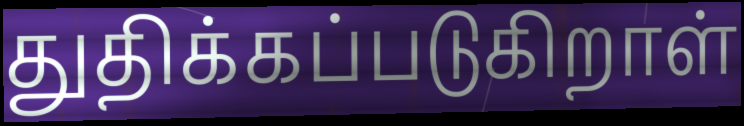
துதிக்கப்படுகிறாள்